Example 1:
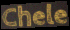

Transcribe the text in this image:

Chele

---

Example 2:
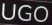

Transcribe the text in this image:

UGO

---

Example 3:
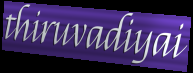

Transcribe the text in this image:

thiruvadiyai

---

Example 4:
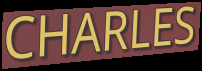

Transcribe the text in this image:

CHARLES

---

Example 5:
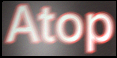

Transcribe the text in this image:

Atop